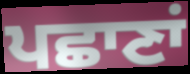
ਪਛਾਣਾਂ